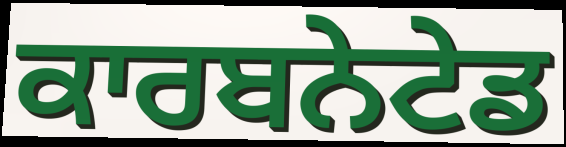
ਕਾਰਬਨੇਟੇਡ